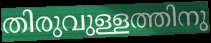
തിരുവുള്ളത്തിനു